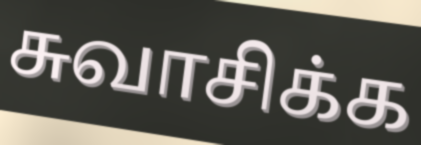
சுவாசிக்க